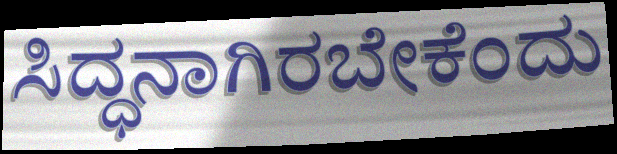
ಸಿದ್ಧನಾಗಿರಬೇಕೆಂದು